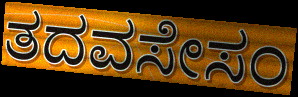
ತದವಸೇಸಂ